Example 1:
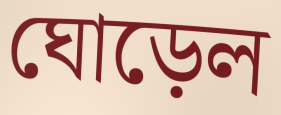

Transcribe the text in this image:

ঘোড়েল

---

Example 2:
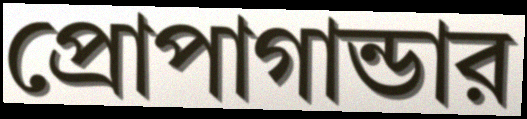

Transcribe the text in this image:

প্রোপাগান্ডার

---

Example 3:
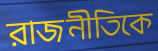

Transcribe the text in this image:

রাজনীতিকে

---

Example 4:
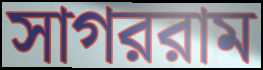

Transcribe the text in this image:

সাগররাম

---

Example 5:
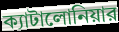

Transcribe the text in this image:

ক্যাটালোনিয়ার